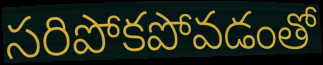
సరిపోకపోవడంతో